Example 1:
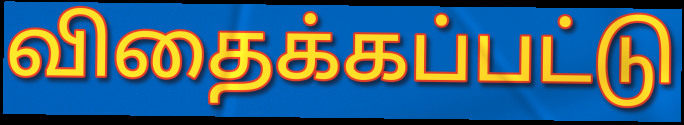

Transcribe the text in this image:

விதைக்கப்பட்டு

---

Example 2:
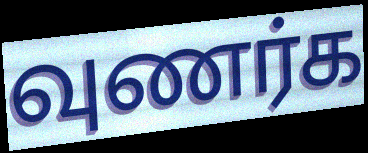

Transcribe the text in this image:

வுணர்க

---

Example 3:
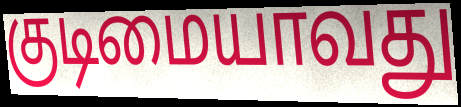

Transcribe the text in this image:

குடிமையாவது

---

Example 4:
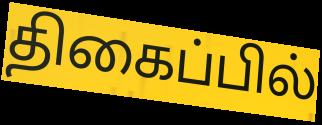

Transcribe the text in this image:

திகைப்பில்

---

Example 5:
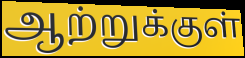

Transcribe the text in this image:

ஆற்றுக்குள்